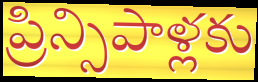
ప్రిన్సిపాళ్లకు